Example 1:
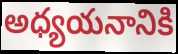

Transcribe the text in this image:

అధ్యయనానికి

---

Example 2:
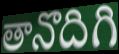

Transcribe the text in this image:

తానొదిగి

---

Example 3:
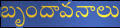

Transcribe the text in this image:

బృందావనాలు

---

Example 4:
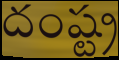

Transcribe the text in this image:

దంష్ట్ర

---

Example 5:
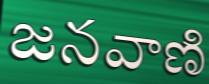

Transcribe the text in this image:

జనవాణి